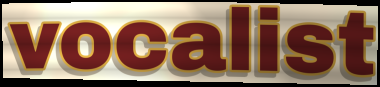
vocalist